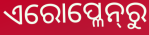
ଏରୋପ୍ଳେନ୍‍ରୁ